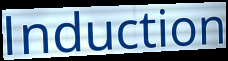
Induction